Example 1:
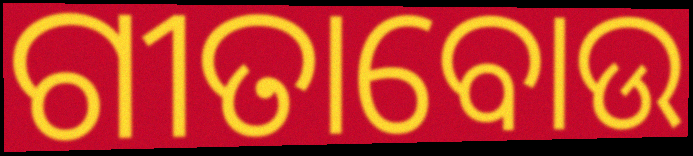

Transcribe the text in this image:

ଗୀତାବୋଉ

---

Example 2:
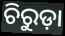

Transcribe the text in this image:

ଚିରୁଡ଼ା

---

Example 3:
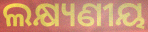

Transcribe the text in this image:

ଲକ୍ଷ୍ୟଣୀୟ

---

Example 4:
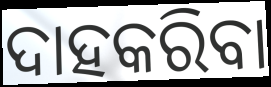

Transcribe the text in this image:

ଦାହକରିବା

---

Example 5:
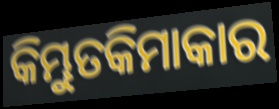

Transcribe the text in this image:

କିମ୍ଭୁତକିମାକାର